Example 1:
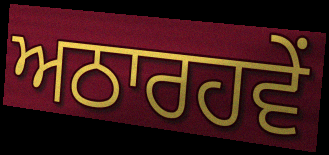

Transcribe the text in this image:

ਅਠਾਰਹਵੇਂ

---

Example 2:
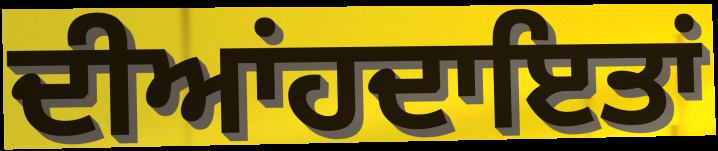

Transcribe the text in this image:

ਦੀਆਂਹਦਾਇਤਾਂ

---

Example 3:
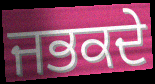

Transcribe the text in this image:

ਜਭਕਦੇ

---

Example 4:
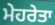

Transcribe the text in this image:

ਮੇਹਰੇਤਾ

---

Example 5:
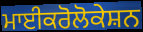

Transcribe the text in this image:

ਮਾਈਕਰੋਲੋਕੇਸ਼ਨ